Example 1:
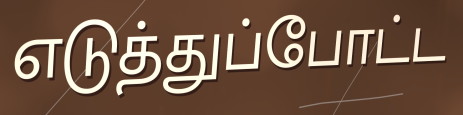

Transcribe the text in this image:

எடுத்துப்போட்ட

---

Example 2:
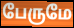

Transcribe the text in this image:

பேருமே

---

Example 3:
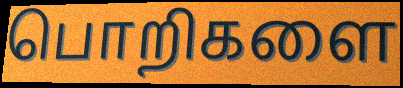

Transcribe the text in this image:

பொறிகளை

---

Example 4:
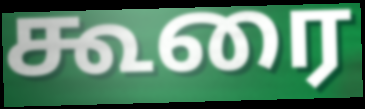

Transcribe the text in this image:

கூரை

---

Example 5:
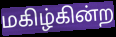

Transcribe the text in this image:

மகிழ்கின்ற